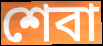
শেবা